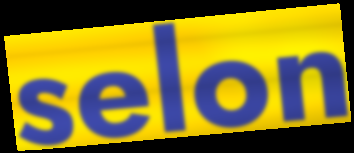
selon